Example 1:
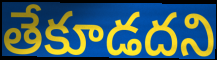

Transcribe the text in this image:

తేకూడదని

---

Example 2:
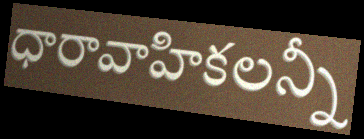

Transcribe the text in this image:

ధారావాహికలన్నీ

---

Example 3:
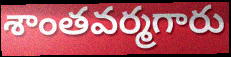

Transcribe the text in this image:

శాంతవర్మగారు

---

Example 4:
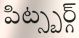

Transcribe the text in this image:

పిట్స్బర్గ్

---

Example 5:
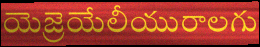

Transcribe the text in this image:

యెజ్రెయేలీయురాలగు